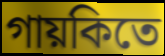
গায়কিতে